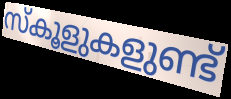
സ്കൂളുകളുണ്ട്